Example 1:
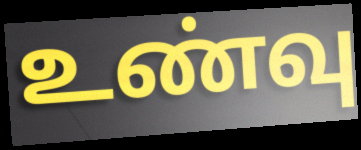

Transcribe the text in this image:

உண்வு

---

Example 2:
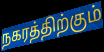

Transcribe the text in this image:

நகரத்திற்கும்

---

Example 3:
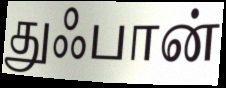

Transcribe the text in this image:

துஃபான்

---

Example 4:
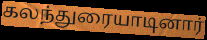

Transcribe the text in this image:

கலந்துரையாடினார்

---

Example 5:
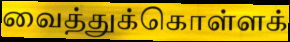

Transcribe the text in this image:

வைத்துக்கொள்ளக்